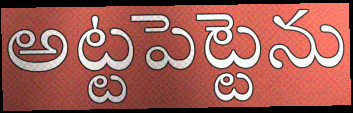
అట్టపెట్టెను